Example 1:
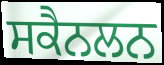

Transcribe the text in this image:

ਸਕੈਨਲਨ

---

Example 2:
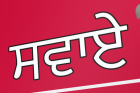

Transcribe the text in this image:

ਸਵਾਏ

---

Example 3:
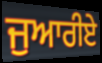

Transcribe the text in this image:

ਜੁਆਰੀਏ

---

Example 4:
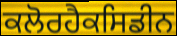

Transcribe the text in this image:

ਕਲੋਰਹੈਕਸਿਡੀਨ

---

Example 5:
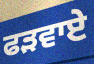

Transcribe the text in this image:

ਫੜਵਾਏ